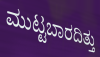
ಮುಟ್ಟಬಾರದಿತ್ತು